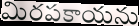
మిరపకాయను